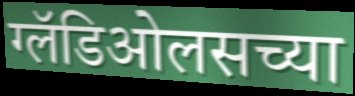
ग्लॅडिओलसच्या